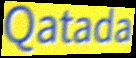
Qatada